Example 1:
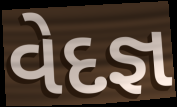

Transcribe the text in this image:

વેદજ્ઞ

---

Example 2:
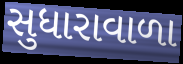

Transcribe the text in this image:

સુધારાવાળા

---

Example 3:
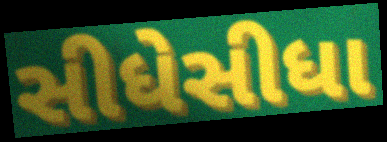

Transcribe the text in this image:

સીધેસીધા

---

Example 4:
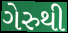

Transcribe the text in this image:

ગેરુથી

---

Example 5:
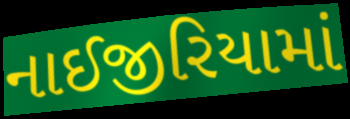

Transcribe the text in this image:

નાઈજીરિયામાં